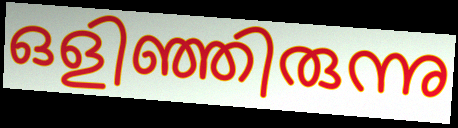
ഒളിഞ്ഞിരുന്നു